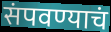
संपवण्याचं